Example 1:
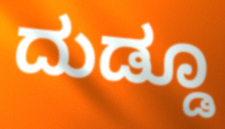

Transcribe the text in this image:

ದುಡ್ಡೂ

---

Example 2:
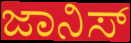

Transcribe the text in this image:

ಜಾನಿಸ್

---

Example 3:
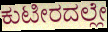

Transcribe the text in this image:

ಕುಟೀರದಲ್ಲೇ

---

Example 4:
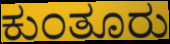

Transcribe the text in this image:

ಕುಂತೂರು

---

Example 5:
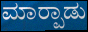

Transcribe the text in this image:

ಮಾರ‍್ಪಾಡು